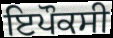
ਇਪੌਕਸੀ